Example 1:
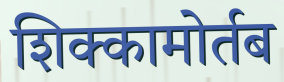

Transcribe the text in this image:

शिक्कामोर्तब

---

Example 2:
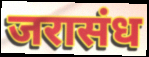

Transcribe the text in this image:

जरासंध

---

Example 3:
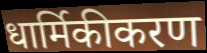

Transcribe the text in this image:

धार्मिकीकरण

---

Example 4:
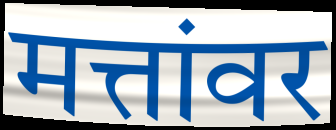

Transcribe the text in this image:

मत्तांवर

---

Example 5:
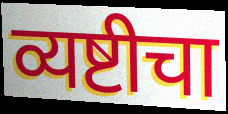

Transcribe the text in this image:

व्यष्टीचा